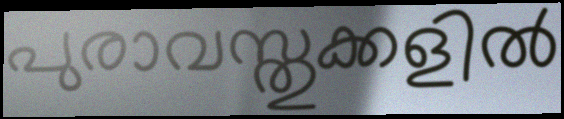
പുരാവസ്തുക്കളിൽ